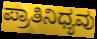
ಪ್ರಾತಿನಿಧ್ಯವು